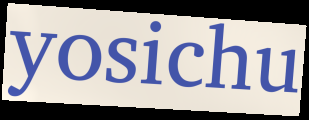
yosichu